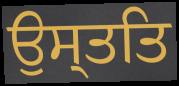
ਉਸ੍ਤਤਿ